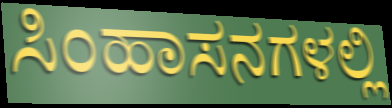
ಸಿಂಹಾಸನಗಳಲ್ಲಿ